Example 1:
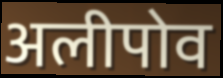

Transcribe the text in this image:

अलीपोव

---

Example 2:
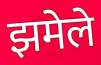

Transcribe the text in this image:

झमेले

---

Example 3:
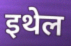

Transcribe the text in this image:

इथेल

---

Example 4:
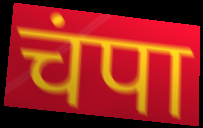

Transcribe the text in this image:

चंपा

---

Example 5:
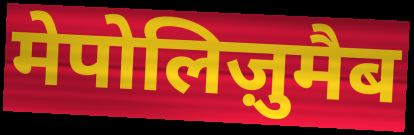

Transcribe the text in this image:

मेपोलिज़ुमैब